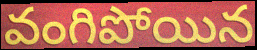
వంగిపోయిన